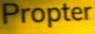
Propter